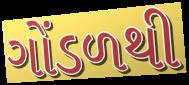
ગોંડળથી